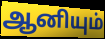
ஆனியும்